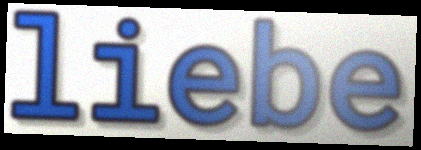
liebe